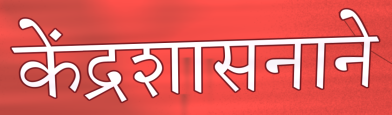
केंद्रशासनाने